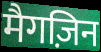
मैगज़िन